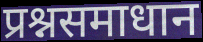
प्रश्नसमाधान